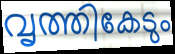
വൃത്തികേടും